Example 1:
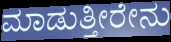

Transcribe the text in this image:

ಮಾಡುತ್ತೀರೇನು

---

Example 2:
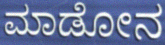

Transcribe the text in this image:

ಮಾಡೋನ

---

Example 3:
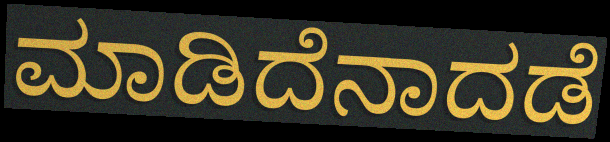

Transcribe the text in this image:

ಮಾಡಿದೆನಾದಡೆ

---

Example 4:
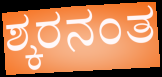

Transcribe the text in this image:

ಶ್ಕರನಂತ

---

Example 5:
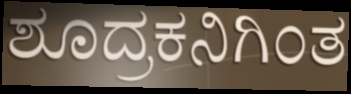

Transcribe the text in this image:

ಶೂದ್ರಕನಿಗಿಂತ